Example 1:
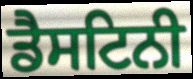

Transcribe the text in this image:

ਡੈਸਟਿਨੀ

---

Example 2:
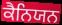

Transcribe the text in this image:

ਕੈਨਿਯਨ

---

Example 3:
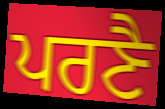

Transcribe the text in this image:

ਪਰਣੈ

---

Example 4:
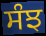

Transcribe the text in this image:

ਸੰਝ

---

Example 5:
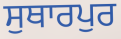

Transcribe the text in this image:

ਸੁਥਾਰਪੁਰ